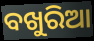
ବଖୁରିଆ